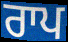
ਰਾਪ